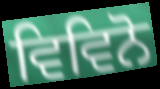
ਵਿਵਿਨੋ